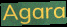
Agara